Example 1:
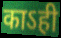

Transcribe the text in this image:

काऽही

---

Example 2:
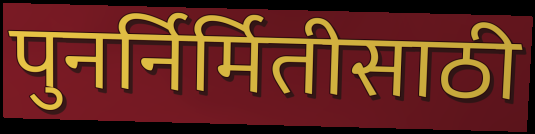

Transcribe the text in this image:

पुनर्निर्मितीसाठी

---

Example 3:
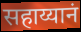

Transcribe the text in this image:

सहाय्यानं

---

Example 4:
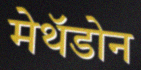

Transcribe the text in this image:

मेथॅडोन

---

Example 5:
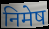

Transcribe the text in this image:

निमेष